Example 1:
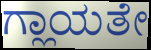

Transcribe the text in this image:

ಗ್ಲಾಯತೇ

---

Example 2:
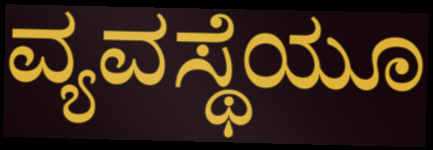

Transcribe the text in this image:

ವ್ಯವಸ್ಥೆಯೂ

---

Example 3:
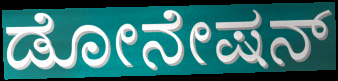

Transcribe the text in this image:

ಡೋನೇಷನ್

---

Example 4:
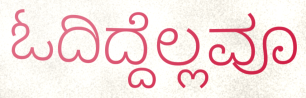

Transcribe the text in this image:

ಓದಿದ್ದೆಲ್ಲವೂ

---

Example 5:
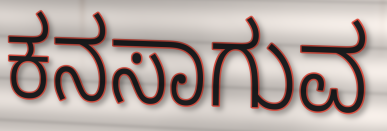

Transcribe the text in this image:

ಕನಸಾಗುವ